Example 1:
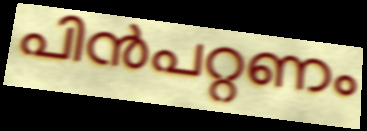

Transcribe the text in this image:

പിൻപറ്റണം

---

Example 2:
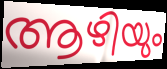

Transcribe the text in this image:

ആഴിയും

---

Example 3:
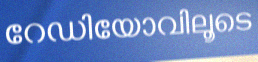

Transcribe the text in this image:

റേഡിയോവിലൂടെ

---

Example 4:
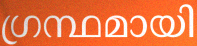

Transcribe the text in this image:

ഗ്രന്ഥമായി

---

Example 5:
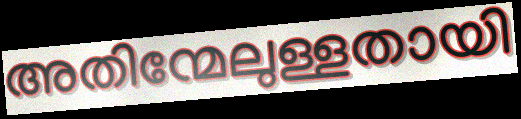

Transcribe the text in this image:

അതിന്മേലുള്ളതായി